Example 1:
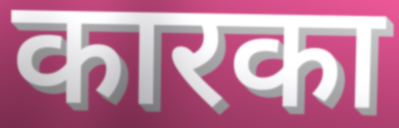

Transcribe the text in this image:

कारका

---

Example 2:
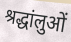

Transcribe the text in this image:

श्रद्धांलुओं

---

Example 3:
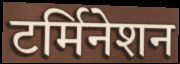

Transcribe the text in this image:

टर्मिनेशन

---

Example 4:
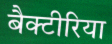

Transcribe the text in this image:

बैक्टीरिया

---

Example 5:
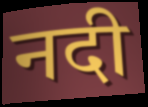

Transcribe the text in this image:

नदी